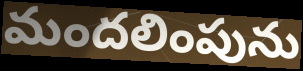
మందలింపును